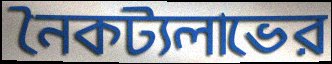
নৈকট্যলাভের